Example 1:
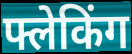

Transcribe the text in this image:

फ्लेकिंग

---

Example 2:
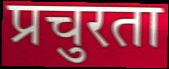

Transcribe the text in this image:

प्रचुरता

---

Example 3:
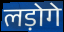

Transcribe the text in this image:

लड़ोगे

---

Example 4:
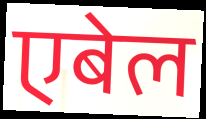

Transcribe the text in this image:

एबेल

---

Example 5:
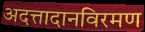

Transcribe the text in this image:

अदत्तादानविरमण